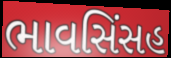
ભાવસિંસહ